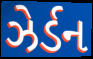
ઝેર્ડન